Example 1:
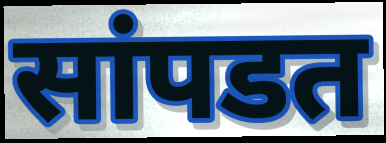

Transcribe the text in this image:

सांपडत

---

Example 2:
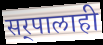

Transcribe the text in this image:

सर्पालाही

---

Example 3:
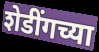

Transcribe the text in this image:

शेडींगच्या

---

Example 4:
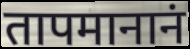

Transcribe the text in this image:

तापमानानं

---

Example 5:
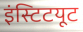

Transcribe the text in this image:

इंस्टिटयूट